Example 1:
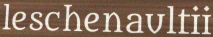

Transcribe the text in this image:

leschenaultii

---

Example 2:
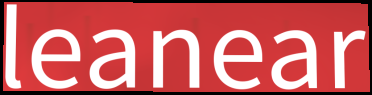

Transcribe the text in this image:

leanear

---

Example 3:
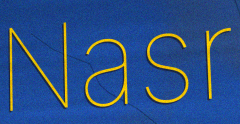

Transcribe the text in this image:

Nasr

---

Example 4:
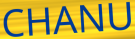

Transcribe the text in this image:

CHANU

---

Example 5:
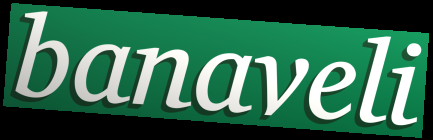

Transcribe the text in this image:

banaveli